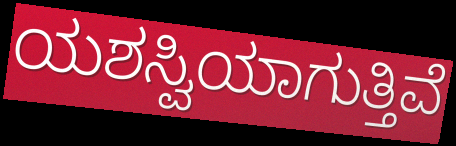
ಯಶಸ್ವಿಯಾಗುತ್ತಿವೆ